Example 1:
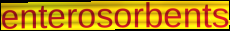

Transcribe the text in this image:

enterosorbents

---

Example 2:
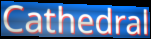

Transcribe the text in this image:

Cathedral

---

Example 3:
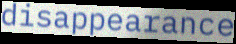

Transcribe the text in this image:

disappearance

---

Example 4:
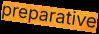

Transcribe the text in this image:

preparative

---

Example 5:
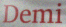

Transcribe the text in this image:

Demi